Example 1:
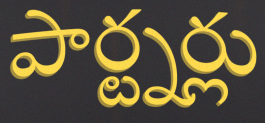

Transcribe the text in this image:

పార్ట్నర్లు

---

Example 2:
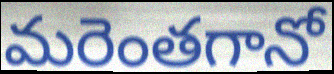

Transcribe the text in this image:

మరెంతగానో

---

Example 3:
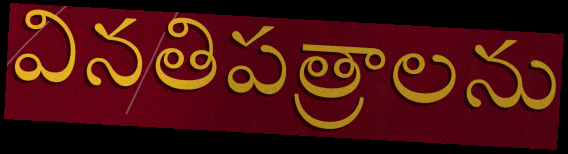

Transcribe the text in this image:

వినతిపత్రాలను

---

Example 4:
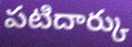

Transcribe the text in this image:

పటిదార్కు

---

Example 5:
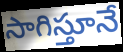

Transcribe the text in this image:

సాగిస్తూనే